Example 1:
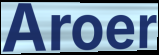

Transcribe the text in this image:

Aroer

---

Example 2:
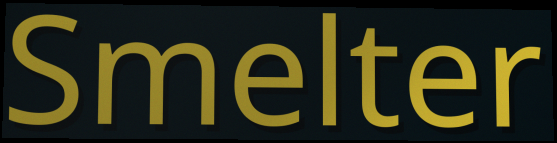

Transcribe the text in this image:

Smelter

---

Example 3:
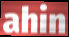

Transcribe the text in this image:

ahin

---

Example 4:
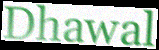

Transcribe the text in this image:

Dhawal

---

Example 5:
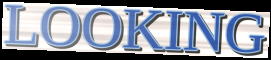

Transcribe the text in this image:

LOOKING